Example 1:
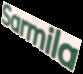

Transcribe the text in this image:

Sarmila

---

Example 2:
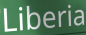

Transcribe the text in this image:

Liberia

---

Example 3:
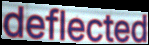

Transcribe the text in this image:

deflected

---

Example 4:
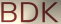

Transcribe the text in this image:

BDK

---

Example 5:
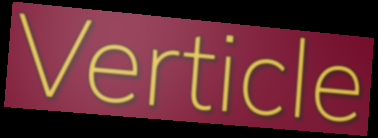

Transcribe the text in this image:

Verticle